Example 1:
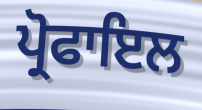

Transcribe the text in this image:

ਪ੍ਰੋਫਾਇਲ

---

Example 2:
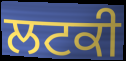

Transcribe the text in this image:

ਲਟਕੀ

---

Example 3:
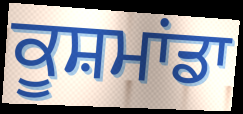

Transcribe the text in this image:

ਕੂਸ਼ਮਾਂਡਾ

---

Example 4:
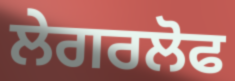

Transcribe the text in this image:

ਲੇਗਰਲੋਫ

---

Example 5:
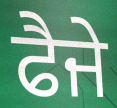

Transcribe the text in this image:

ਫੈਜੇ